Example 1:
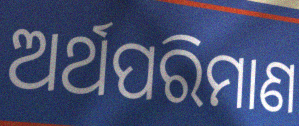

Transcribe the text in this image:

ଅର୍ଥପରିମାଣ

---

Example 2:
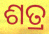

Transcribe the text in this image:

ଶତ୍ର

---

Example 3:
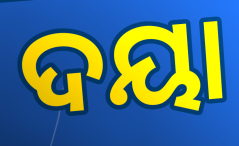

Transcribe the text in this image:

ଦୟା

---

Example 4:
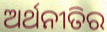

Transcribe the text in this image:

ଅର୍ଥନୀତିର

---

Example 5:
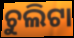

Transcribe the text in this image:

ଚୁଲିଟା